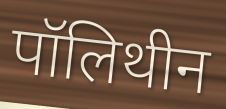
पॉलिथीन